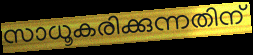
സാധൂകരിക്കുന്നതിന്